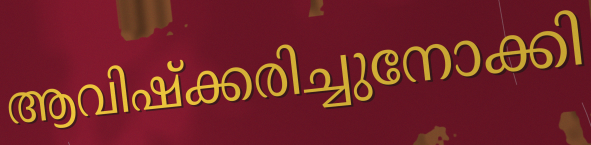
ആവിഷ്ക്കരിച്ചുനോക്കി